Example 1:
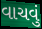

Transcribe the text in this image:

વાચવું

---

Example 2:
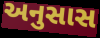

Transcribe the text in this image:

અનુસાસ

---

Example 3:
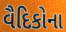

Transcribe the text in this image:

વૈદિકોના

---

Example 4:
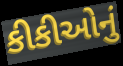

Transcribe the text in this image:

કીકીઓનું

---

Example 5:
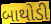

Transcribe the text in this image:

બાથોડી